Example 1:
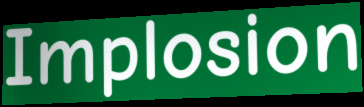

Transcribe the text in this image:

Implosion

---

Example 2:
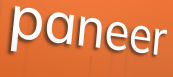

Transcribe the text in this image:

paneer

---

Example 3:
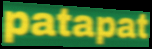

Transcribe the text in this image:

patapat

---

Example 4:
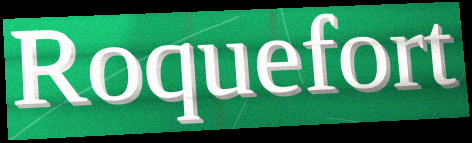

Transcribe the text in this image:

Roquefort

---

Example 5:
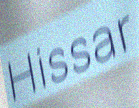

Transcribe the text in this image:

Hissar